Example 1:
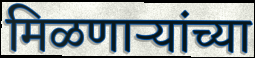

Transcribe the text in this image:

मिळणाऱ्यांच्या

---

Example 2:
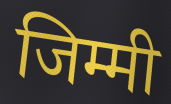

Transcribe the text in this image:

जिम्मी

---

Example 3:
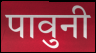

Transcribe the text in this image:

पावुनी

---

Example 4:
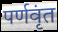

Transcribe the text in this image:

पर्णवृंत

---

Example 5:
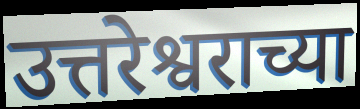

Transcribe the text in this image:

उत्तरेश्वराच्या